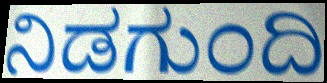
ನಿಡಗುಂದಿ